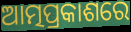
ଆତ୍ମପ୍ରକାଶରେ